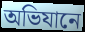
অভিযানে